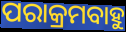
ପରାକ୍ରମବାହୁ